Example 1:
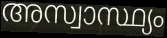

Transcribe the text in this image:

അസ്വാസ്ഥ്യം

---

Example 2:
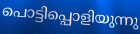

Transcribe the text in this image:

പൊട്ടിപ്പൊളിയുന്നു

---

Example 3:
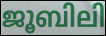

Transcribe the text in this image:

ജൂബിലി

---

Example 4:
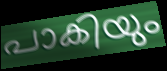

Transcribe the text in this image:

പാകിയും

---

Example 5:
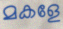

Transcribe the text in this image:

മകളേ